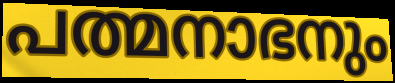
പത്മനാഭനും